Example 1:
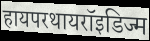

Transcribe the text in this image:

हायपरथायरॉइडिज्म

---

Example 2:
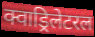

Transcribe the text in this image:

क्वाड्रिलेटरल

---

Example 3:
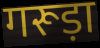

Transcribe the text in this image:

गरूड़ा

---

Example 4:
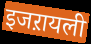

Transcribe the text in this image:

इजऱायली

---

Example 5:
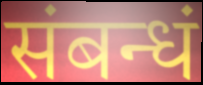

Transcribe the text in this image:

संबन्धं